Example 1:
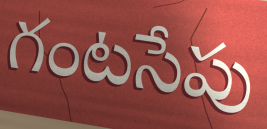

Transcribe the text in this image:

గంటసేపు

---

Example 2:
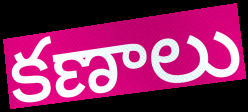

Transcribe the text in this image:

కణాలు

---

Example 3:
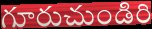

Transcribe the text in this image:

గూరుచుండిరి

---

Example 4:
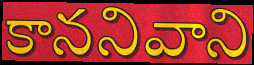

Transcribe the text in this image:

కాననివాని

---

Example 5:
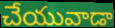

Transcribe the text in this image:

చేయువాడా